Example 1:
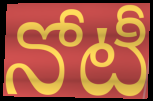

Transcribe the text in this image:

నోటీ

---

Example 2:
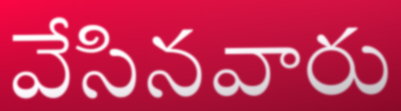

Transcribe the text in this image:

వేసినవారు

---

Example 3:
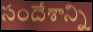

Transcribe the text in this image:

సందేశాన్ని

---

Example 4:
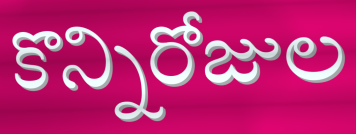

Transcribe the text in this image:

కొన్నిరోజుల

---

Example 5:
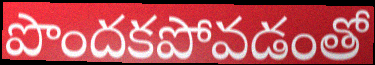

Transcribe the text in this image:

పొందకపోవడంతో